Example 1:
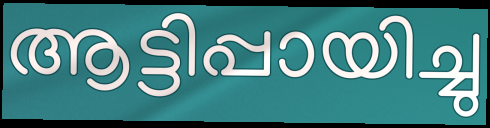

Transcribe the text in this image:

ആട്ടിപ്പായിച്ചു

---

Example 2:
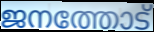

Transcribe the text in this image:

ജനത്തോട്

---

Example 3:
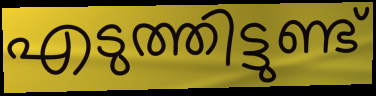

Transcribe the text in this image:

എടുത്തിട്ടുണ്ട്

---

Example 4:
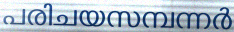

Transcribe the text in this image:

പരിചയസമ്പന്നർ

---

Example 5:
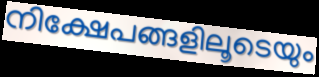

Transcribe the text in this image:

നിക്ഷേപങ്ങളിലൂടെയും